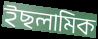
ইছলামিক